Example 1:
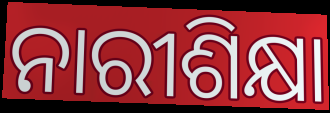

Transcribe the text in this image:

ନାରୀଶିକ୍ଷା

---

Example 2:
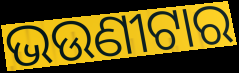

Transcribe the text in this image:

ଭଉଣୀଟାର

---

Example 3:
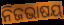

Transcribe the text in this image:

ନିଜଭାଷୟ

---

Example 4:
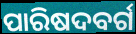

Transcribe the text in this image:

ପାରିଷଦବର୍ଗ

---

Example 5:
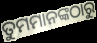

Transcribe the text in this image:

ତୁମମାନଙ୍କଠାରୁ